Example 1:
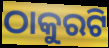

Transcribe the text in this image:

ଠାକୁରଟି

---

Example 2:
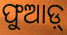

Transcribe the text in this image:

ଫୁଆଡ଼୍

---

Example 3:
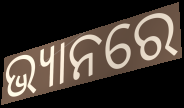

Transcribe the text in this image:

ଭ୍ୟାନରେ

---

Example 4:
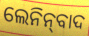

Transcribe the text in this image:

ଲେନିନ୍‌ବାଦ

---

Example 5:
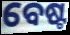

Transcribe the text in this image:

ବେଷ୍ଟ